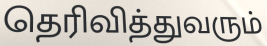
தெரிவித்துவரும்